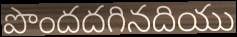
పొందదగినదియు